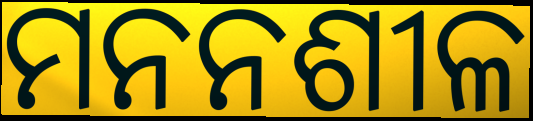
ମନନଶୀଳ